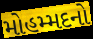
મોહમ્મદનો